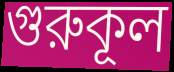
গুরুকূল